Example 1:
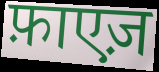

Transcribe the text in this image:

फ़ाएज़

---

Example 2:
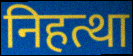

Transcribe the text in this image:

निहत्था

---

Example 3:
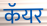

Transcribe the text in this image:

कॅयर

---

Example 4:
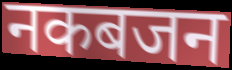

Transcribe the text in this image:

नकबजन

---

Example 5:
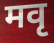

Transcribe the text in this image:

मवृ